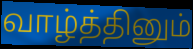
வாழ்த்தினும்